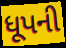
ધૂપની